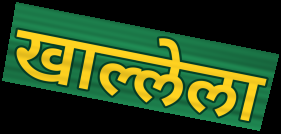
खाल्लेला